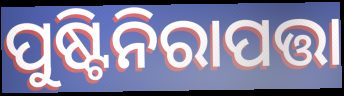
ପୁଷ୍ଟିନିରାପତ୍ତା